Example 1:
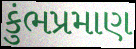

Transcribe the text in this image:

કુંભપ્રમાણ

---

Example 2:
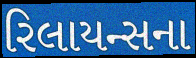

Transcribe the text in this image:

રિલાયન્સના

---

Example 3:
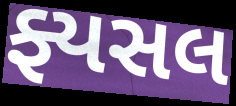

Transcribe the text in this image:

ફ્યસલ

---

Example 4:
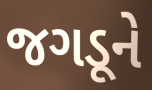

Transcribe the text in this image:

જગડૂને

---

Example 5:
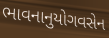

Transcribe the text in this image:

ભાવનાનુયોગવસેન